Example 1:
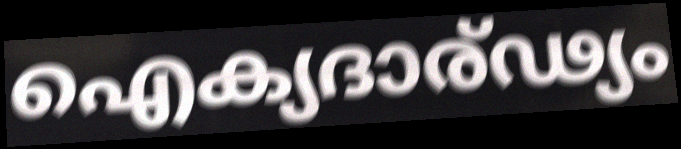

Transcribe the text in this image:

ഐക്യദാര്ഢ്യം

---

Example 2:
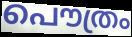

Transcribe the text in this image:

പൌത്രം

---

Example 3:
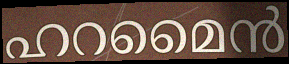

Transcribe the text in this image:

ഹറമൈൻ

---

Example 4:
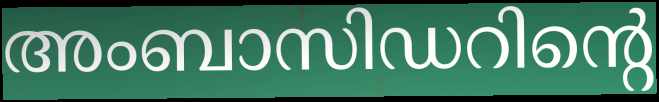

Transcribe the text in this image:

അംബാസിഡറിന്റെ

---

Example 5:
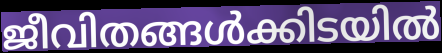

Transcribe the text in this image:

ജീവിതങ്ങൾക്കിടയിൽ